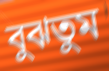
বুঝতুম